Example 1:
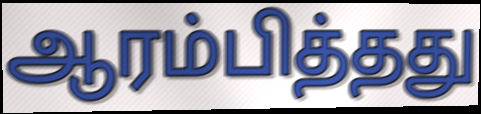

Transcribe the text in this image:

ஆரம்பித்தது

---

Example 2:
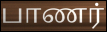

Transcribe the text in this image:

பாணர்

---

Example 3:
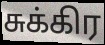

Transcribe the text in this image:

சுக்கிர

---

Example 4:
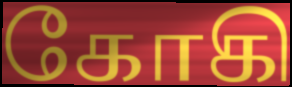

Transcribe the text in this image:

கோகி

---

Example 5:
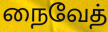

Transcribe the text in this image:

நைவேத்